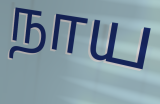
நாய